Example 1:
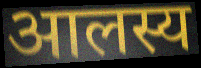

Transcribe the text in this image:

आलस्य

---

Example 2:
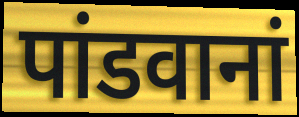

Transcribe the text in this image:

पांडवानां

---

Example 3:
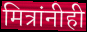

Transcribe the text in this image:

मित्रांनीही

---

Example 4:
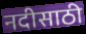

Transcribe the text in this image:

नदीसाठी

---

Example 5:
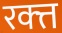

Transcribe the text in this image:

रक्त्त